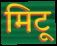
मिटू